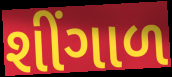
શીંગાળ